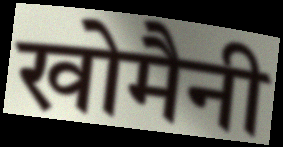
खोमैनी